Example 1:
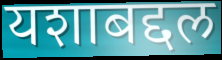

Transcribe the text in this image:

यशाबद्दल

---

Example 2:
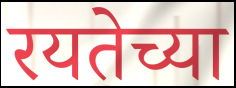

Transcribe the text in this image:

रयतेच्या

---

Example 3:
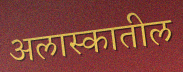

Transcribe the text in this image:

अलास्कातील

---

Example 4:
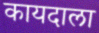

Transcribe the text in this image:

कायदाला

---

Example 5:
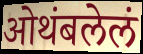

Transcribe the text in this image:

ओथंबलेलं